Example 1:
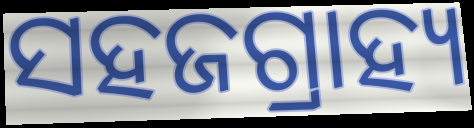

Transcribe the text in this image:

ସହଜଗ୍ରାହ୍ୟ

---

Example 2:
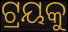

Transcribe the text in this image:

ଟ୍ରୟକୁ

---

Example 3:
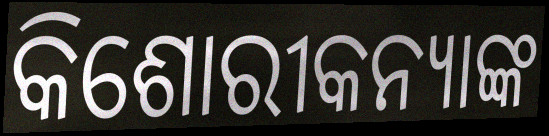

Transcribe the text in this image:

କିଶୋରୀକନ୍ୟାଙ୍କ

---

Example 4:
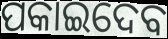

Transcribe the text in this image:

ପକାଇଦେବ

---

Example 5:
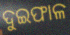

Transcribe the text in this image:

ଦୁଇଫାଳ